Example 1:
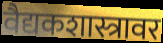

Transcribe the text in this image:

वैद्यकशास्त्रावर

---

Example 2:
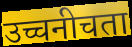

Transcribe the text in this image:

उच्चनीचता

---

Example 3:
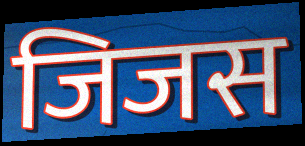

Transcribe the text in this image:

जिजस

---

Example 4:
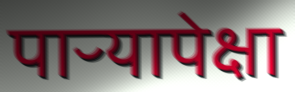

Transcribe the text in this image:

पाऱ्यापेक्षा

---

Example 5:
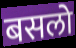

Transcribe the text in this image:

बसलो